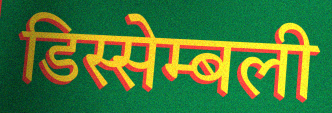
डिस्सेम्बली